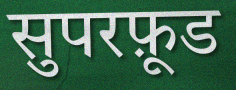
सुपरफ़ूड